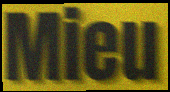
Mieu